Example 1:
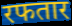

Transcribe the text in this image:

रफतार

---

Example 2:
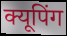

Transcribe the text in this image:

क्यूपिंग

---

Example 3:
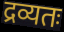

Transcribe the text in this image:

द्रव्यतः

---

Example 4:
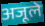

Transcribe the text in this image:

अजूले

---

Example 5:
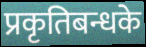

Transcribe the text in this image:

प्रकृतिबन्धके